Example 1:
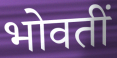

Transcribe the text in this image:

भोवतीं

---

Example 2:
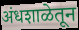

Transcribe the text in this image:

अंधशाळेतून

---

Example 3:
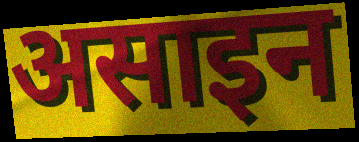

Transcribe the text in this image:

असाइन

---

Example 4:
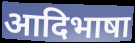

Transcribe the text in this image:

आदिभाषा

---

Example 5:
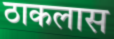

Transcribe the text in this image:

ठाकलास